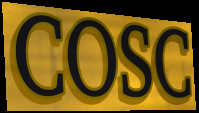
COSC